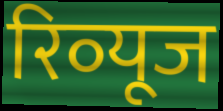
रिव्‍यूज